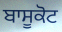
ਬਾਸੂਕੋਟ